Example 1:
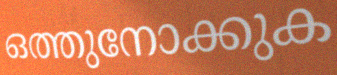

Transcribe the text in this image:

ഒത്തുനോക്കുക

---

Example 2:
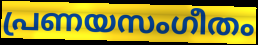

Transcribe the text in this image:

പ്രണയസംഗീതം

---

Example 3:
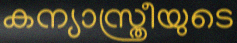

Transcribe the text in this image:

കന്യാസ്ത്രീയുടെ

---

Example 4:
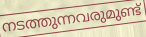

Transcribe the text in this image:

നടത്തുന്നവരുമുണ്ട്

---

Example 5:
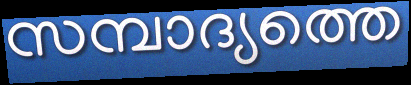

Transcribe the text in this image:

സമ്പാദ്യത്തെ